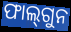
ଫାଲ୍‍ଗୁନ